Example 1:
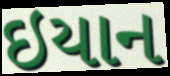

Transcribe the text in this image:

ઇયાન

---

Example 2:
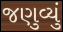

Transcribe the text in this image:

જણુવ્યું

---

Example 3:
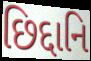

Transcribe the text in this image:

છિદ્દાનિ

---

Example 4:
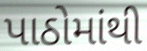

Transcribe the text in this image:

પાઠોમાંથી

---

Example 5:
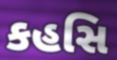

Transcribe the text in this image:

કહસિ